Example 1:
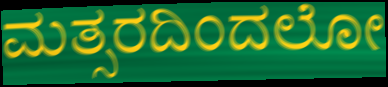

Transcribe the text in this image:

ಮತ್ಸರದಿಂದಲೋ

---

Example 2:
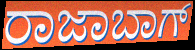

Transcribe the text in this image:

ರಾಜಾಬಾಗ್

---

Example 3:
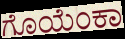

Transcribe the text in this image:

ಗೊಯೆಂಕಾ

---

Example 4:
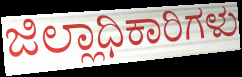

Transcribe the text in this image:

ಜಿಲ್ಲಾಧಿಕಾರಿಗಳು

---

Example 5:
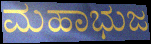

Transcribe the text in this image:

ಮಹಾಭುಜ